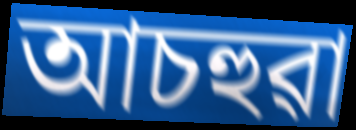
আচহুৱা